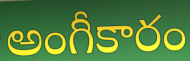
అంగీకారం